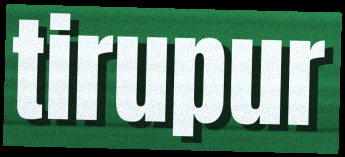
tirupur